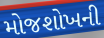
મોજશોખની